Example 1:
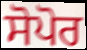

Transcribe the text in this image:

ਸੋਪੋਰ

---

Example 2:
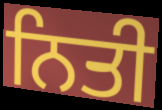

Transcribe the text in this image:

ਨਿਤੀ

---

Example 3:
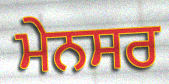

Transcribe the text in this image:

ਮੇਨਸਰ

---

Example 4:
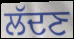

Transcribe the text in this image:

ਲੱਦਣ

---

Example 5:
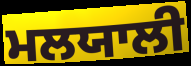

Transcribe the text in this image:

ਮਲਯਾਲੀ